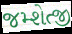
જમ્શેત્જી